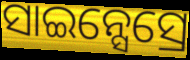
ସାଇନ୍ସେସ୍ରେ